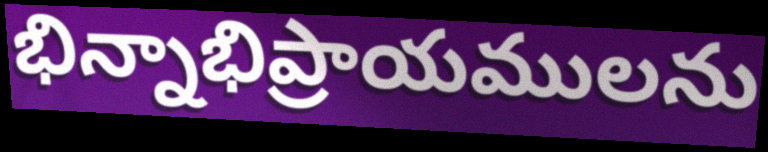
భిన్నాభిప్రాయములను